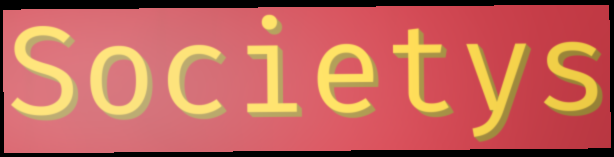
Societys